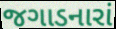
જગાડનારાં